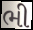
ભી